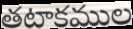
తటాకముల